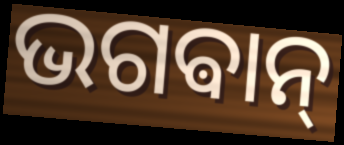
ଭଗଵାନ୍